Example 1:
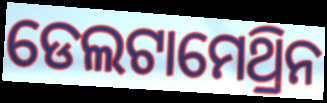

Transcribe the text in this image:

ଡେଲଟାମେଥ୍ରିନ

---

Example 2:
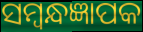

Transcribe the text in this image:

ସମ୍ବନ୍ଧଜ୍ଞାପକ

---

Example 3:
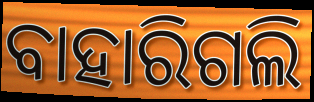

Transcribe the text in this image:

ବାହାରିଗଲି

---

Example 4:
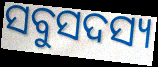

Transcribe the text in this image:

ସବୁସଦସ୍ୟ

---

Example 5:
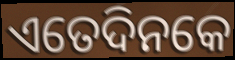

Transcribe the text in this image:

ଏତେଦିନକେ